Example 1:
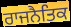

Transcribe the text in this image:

ਰਾਜਨੈਤਿਕ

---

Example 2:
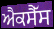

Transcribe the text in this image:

ਐਕਸੈੱਸ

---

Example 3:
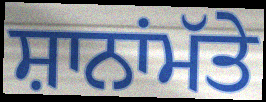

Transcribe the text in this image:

ਸ਼ਾਨਾਂਮੱਤੇ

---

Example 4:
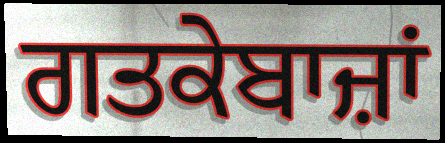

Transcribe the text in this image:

ਗਤਕੇਬਾਜ਼ਾਂ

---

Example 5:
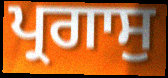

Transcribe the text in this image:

ਪ੍ਰਗਾਸੁ